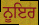
ਨੂਇਰ